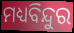
ମଧ୍ୟବିନ୍ଦୁର